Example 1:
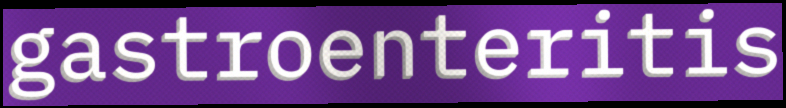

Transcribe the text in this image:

gastroenteritis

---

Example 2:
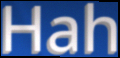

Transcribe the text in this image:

Hah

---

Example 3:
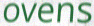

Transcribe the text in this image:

ovens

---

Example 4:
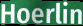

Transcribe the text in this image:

Hoerlin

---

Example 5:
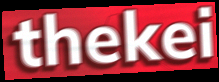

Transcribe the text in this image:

thekei